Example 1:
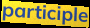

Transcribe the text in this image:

participle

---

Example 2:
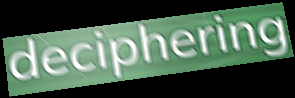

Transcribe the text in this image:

deciphering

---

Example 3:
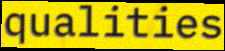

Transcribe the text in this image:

qualities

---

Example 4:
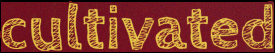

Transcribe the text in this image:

cultivated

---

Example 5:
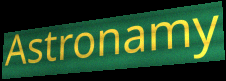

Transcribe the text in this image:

Astronamy